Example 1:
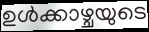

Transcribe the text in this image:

ഉൾക്കാഴ്ചയുടെ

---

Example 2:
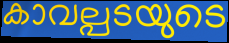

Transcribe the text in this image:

കാവല്പടയുടെ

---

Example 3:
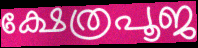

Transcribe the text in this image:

ക്ഷേത്രപൂജ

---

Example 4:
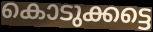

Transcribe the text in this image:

കൊടുക്കട്ടെ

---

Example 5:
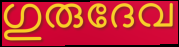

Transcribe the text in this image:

ഗുരുദേവ